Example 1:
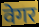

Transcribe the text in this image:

वेगर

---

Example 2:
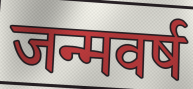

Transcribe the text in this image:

जन्मवर्ष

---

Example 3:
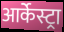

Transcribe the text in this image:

आर्केस्ट्रा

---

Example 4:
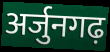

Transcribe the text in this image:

अर्जुनगढ़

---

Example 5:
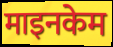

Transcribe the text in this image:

माइनकेम